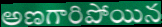
అణగారిపోయిన